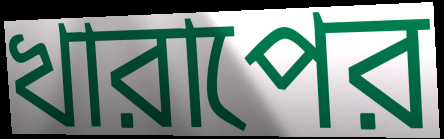
খারাপের